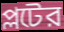
প্লটের